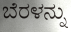
ಬೆರಳನ್ನು